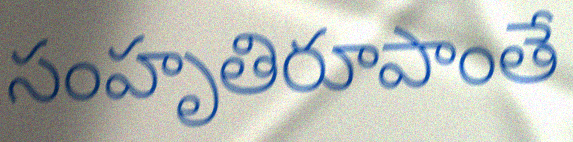
సంహృతిరూపాంతే